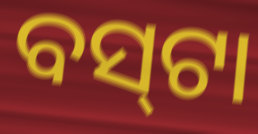
ବସ୍‍ଟା